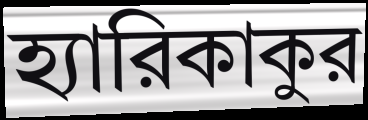
হ্যারিকাকুর